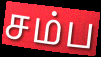
சம்ப